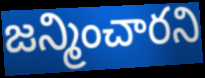
జన్మించారని